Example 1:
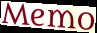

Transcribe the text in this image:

Memo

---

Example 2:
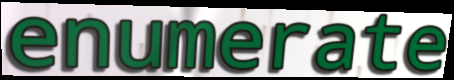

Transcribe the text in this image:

enumerate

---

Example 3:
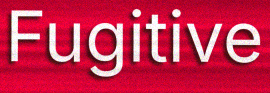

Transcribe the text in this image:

Fugitive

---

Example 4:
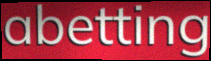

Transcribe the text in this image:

abetting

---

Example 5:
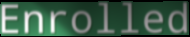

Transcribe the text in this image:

Enrolled